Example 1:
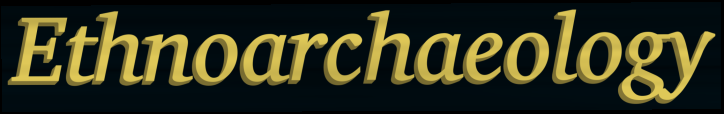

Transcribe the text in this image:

Ethnoarchaeology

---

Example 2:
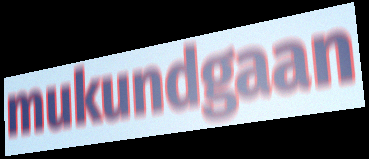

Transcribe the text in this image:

mukundgaan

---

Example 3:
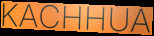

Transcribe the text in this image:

KACHHUA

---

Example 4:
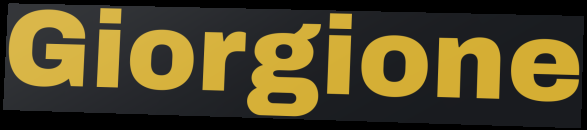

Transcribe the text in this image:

Giorgione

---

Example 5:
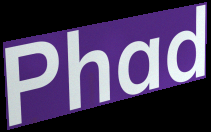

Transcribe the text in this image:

Phad